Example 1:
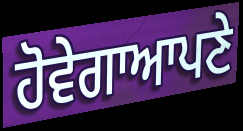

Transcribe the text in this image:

ਹੋਵੇਗਾਆਪਣੇ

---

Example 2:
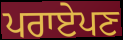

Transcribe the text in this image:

ਪਰਾਏਪਣ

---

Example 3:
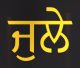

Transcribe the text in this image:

ਜੁਲੇ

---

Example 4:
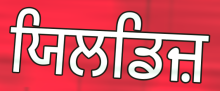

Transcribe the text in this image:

ਯਿਲਡਿਜ਼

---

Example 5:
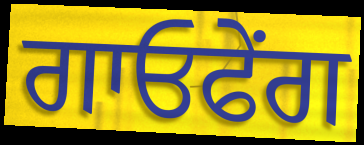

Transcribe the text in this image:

ਗਾਓਫੇਂਗ